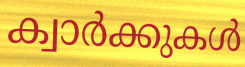
ക്വാർക്കുകൾ